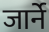
जार्ने